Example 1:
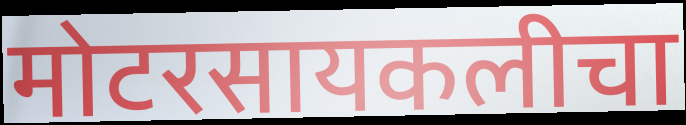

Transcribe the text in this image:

मोटरसायकलीचा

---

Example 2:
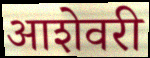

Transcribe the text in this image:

आशेवरी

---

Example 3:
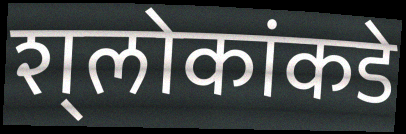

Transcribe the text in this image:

श्लोकांकडे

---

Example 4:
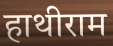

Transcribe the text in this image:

हाथीराम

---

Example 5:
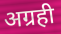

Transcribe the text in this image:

अग्रही